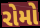
રોમો